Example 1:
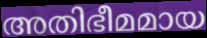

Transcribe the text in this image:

അതിഭീമമായ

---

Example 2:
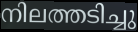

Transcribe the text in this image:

നിലത്തടിച്ചു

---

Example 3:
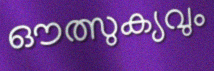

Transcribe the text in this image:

ഔത്സുക്യവും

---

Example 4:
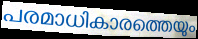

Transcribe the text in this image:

പരമാധികാരത്തെയും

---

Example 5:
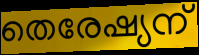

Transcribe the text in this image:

തെരേഷ്യന്